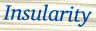
Insularity